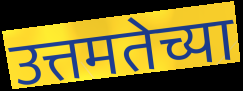
उत्तमतेच्या